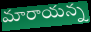
మారాయన్న